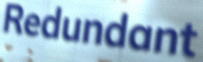
Redundant